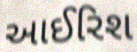
આઈરિશ